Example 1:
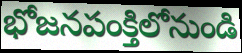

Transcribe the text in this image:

భోజనపంక్తిలోనుండి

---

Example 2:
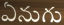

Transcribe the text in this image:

ఏనుగు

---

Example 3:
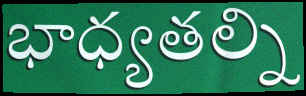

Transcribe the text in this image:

భాధ్యతల్ని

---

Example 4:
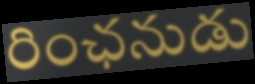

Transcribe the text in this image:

రింఛనుడు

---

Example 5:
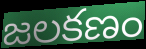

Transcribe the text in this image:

జలకణం